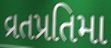
વ્રતપ્રતિમા